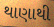
થાણાથી